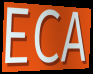
ECA